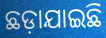
ଛଡ଼ାଯାଇଛି